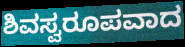
ಶಿವಸ್ವರೂಪವಾದ